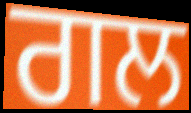
ਗਲ